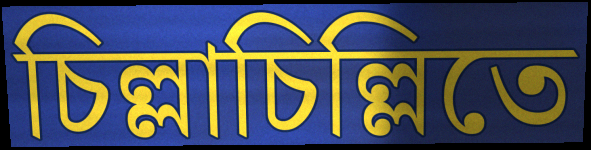
চিল্লাচিল্লিতে